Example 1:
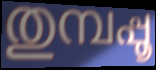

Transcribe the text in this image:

തുമ്പപ്പൂ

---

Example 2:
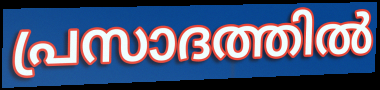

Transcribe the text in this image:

പ്രസാദത്തിൽ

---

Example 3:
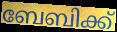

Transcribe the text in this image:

ബേബിക്ക്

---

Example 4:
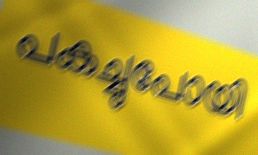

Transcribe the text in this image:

പകച്ചുപോയി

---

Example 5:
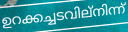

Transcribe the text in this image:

ഉറക്കച്ചടവില്നിന്ന്